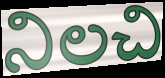
నిలచి